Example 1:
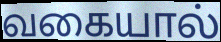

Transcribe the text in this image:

வகையால்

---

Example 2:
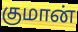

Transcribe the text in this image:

குமான்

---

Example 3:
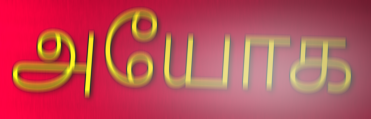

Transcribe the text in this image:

அயோக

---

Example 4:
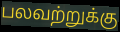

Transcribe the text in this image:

பலவற்றுக்கு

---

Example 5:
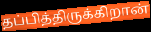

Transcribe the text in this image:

தப்பித்திருக்கிறான்